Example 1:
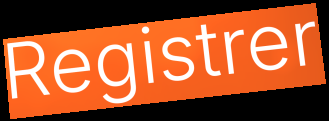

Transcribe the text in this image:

Registrer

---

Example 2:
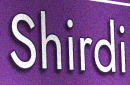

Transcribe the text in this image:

Shirdi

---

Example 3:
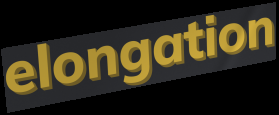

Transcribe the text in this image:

elongation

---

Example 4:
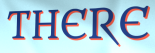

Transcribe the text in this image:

THERE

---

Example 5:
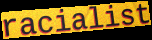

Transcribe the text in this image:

racialist